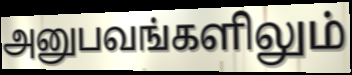
அனுபவங்களிலும்